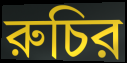
রুচির